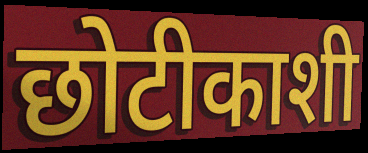
छोटीकाशी